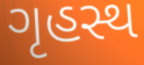
ગૃહસ્થ